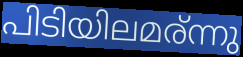
പിടിയിലമര്ന്നു